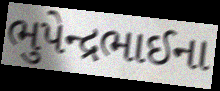
ભુપેન્દ્રભાઈના